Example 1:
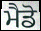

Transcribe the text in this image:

ਮੈਡੋ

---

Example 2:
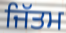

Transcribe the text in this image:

ਜਿੱਤਮ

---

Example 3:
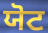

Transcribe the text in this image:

ਯੋਟ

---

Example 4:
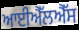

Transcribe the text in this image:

ਆਈਐੱਲਐੱਸ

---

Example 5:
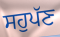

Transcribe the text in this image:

ਸਹੁਪੱਣ